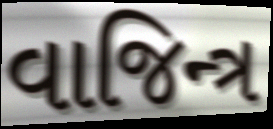
વાજિન્ત્ર